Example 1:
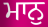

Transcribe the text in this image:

ਮਾਨੁ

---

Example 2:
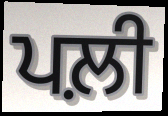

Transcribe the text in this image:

ਪਲ਼ੀ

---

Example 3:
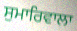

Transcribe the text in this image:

ਸੁਮਾਰਿਵਾਲਾ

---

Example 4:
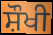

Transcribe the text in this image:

ਸ਼ੌਖੀ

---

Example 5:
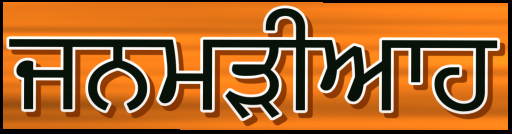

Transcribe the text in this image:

ਜਨਮੜੀਆਹ